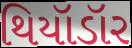
થિયૉડૉર